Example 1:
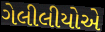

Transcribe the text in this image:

ગેલીલીયોએ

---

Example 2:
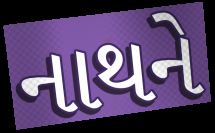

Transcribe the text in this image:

નાથને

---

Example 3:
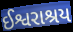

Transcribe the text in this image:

ઈશ્વરાશ્રય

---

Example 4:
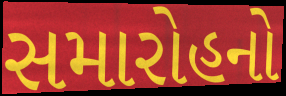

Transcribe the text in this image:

સમારોહનો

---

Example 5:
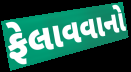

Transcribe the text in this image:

ફેલાવવાનો